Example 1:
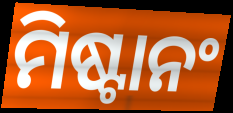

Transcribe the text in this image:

ମିଷ୍ଟାନଂ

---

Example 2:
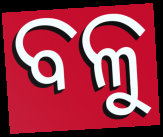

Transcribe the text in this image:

ବଳୁ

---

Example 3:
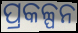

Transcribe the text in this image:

ପ୍ରକଳ୍ପନ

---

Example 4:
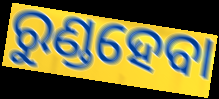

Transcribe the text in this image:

ରୁଣ୍ଡହେବା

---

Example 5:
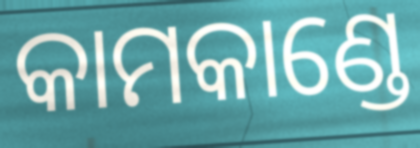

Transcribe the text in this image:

କାମକାଣ୍ଡେ